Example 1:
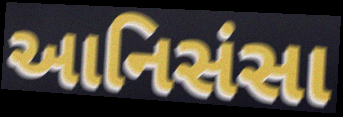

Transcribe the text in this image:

આનિસંસા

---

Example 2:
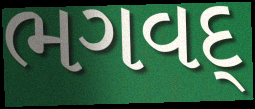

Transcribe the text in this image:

ભગવદ્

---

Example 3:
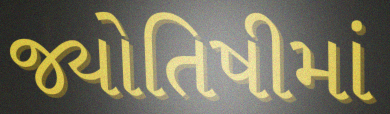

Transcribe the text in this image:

જ્યોતિષીમાં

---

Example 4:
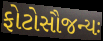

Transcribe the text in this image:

ફોટોસૌજન્યઃ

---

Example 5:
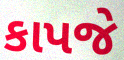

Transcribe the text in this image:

કાપજે